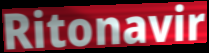
Ritonavir